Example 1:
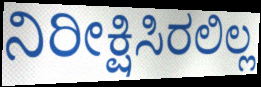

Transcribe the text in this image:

ನಿರೀಕ್ಷಿಸಿರಲಿಲ್ಲ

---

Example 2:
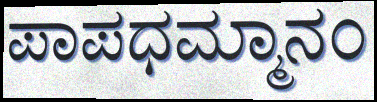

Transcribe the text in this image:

ಪಾಪಧಮ್ಮಾನಂ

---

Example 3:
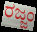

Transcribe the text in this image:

ರಜ್ಜಂ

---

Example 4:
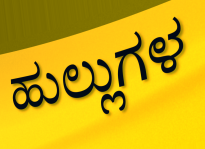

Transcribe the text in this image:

ಹುಲ್ಲುಗಳ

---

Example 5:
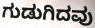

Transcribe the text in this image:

ಗುಡುಗಿದವು